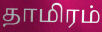
தாமிரம்